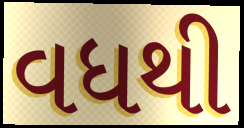
વધથી